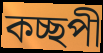
কচ্ছপী